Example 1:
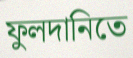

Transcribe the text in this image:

ফুলদানিতে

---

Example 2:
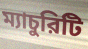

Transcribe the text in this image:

ম্যাচুরিটি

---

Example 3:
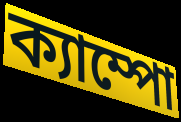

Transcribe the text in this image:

ক্যাম্পো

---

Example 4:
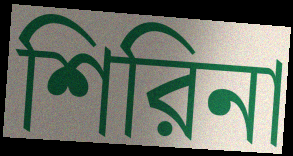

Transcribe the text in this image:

শিরিনা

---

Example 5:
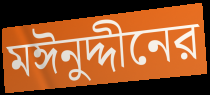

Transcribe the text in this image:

মঈনুদ্দীনের